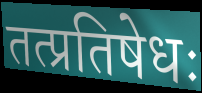
तत्प्रतिषेधः